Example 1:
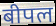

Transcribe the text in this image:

बीपल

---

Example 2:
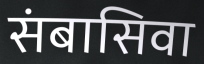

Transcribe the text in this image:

संबासिवा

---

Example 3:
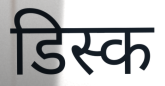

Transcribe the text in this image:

डिस्क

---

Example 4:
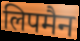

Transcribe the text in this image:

लिपमैन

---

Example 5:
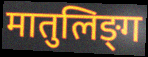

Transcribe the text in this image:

मातुलिङ्ग